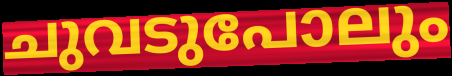
ചുവടുപോലും